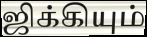
ஜிக்கியும்